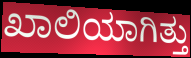
ಖಾಲಿಯಾಗಿತ್ತು